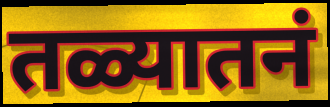
तळ्यातनं